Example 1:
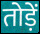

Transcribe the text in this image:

तोड़ें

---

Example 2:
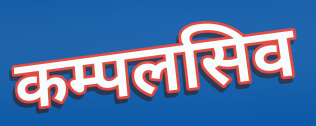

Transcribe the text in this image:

कम्पलसिव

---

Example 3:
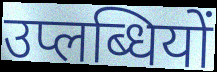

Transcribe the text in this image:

उप्लब्धियों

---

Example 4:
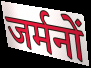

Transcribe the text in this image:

जर्मनों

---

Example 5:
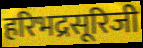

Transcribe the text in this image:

हरिभद्रसूरिजी